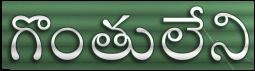
గొంతులేని